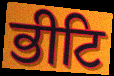
ਭੀਟਿ